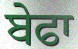
ਬੇਫਾ